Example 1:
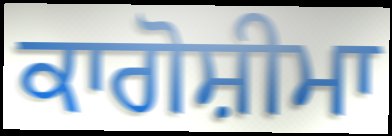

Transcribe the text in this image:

ਕਾਗੋਸ਼ੀਮਾ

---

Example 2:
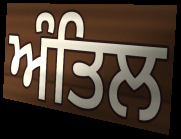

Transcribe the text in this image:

ਅੰਤਿਲ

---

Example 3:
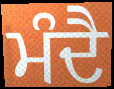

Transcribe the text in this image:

ਮੰਦੈ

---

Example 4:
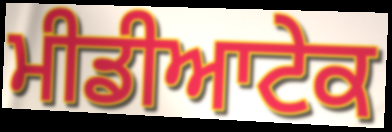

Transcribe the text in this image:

ਮੀਡੀਆਟੇਕ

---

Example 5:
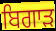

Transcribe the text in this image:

ਬਿਗਾੜ